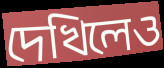
দেখিলেও